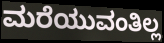
ಮರೆಯುವಂತಿಲ್ಲ